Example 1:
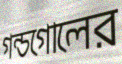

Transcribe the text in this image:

গন্ডগোলের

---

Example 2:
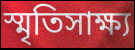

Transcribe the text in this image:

স্মৃতিসাক্ষ্য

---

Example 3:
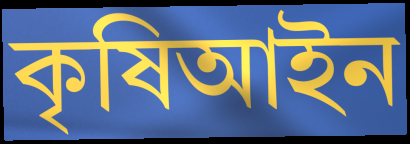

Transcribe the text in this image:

কৃষিআইন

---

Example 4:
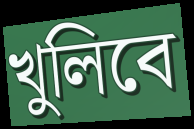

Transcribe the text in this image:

খুলিবে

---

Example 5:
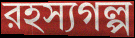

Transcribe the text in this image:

রহস্যগল্প